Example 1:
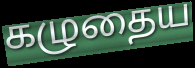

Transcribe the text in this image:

கழுதைய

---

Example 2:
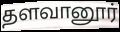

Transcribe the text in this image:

தளவானூர்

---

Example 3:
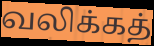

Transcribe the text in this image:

வலிக்கத்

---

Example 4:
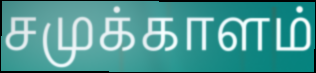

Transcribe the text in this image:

சமுக்காளம்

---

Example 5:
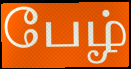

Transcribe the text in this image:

பேழ்